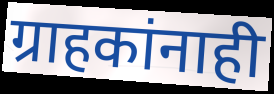
ग्राहकांनाही